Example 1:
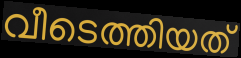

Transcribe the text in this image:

വീടെത്തിയത്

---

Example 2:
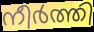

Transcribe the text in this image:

നീർത്തി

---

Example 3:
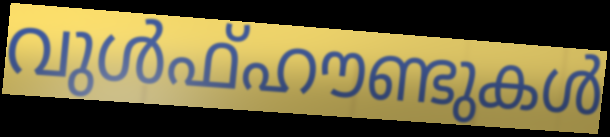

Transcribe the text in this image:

വുൾഫ്ഹൗണ്ടുകൾ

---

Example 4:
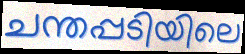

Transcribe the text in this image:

ചന്തപ്പടിയിലെ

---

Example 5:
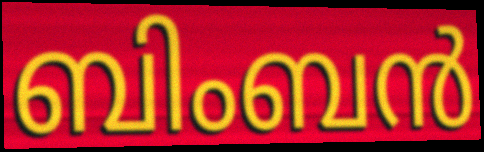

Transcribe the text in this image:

ബിംബൻ